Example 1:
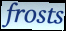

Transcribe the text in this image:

frosts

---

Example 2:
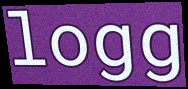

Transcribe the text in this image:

logg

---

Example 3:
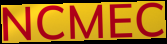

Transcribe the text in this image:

NCMEC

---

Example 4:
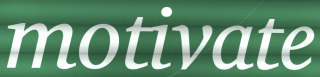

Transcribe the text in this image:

motivate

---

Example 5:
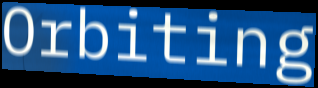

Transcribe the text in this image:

Orbiting